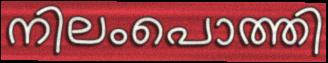
നിലംപൊത്തി